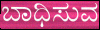
ಬಾಧಿಸುವ